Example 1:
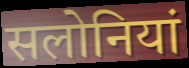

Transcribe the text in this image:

सलोनियां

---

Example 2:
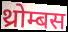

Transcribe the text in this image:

थ्रोम्बस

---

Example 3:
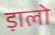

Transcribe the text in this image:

ड़ालो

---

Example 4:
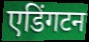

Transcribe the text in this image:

एडिंगटन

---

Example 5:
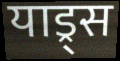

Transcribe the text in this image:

याड्र्स